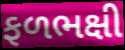
ફળભક્ષી